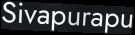
Sivapurapu